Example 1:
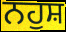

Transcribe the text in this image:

ਨਹੁਸ਼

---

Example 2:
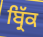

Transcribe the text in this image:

ਬ੍ਰਿੱਕ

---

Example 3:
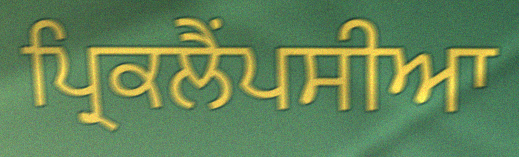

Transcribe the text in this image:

ਪ੍ਰਿਕਲੈਂਪਸੀਆ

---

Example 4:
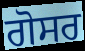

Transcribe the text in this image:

ਗੋਸਰ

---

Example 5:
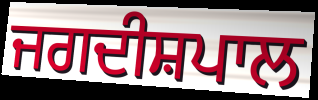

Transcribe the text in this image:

ਜਗਦੀਸ਼ਪਾਲ